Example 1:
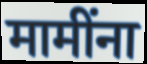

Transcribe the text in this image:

मामींना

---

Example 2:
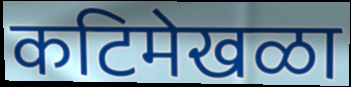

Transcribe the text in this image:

कटिमेखळा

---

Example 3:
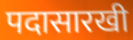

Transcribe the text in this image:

पदासारखी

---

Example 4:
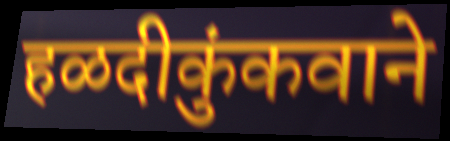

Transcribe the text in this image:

हळदीकुंकवाने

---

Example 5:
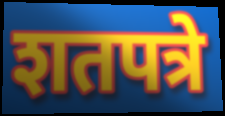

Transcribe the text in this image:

शतपत्रे